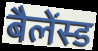
बैलेंस्ड